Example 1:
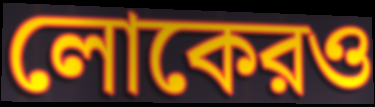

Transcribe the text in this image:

লোকেরও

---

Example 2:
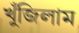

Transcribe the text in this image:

খুঁজিলাম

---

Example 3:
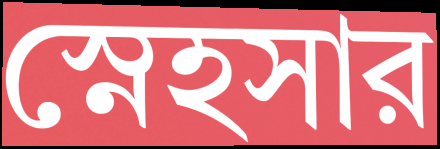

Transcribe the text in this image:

স্নেহসার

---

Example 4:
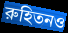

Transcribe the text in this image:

রুহিতনও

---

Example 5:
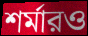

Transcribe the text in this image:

শর্মারও